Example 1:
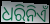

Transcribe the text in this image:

ଧରିନିଏଁ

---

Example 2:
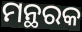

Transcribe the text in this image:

ମନ୍ଥରକ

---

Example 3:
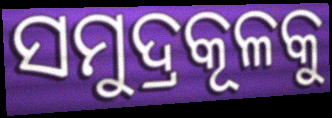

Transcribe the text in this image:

ସମୁଦ୍ରକୂଳକୁ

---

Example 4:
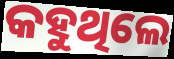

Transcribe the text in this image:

କହୁଥିଲେ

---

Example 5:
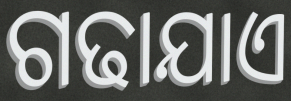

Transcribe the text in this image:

ଗଢାଯାଏ